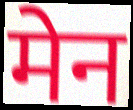
मेन